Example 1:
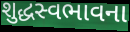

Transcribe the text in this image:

શુદ્ધસ્વભાવના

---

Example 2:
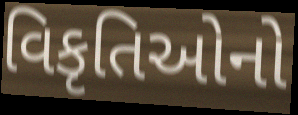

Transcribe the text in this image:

વિકૃતિઓનો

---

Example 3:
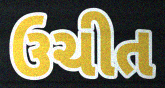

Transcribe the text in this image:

ઉચીત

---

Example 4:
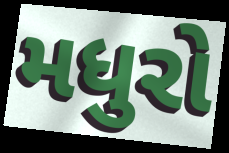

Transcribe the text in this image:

મધુરો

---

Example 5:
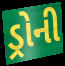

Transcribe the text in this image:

ડ્રોની